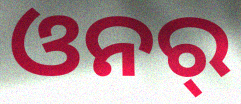
ଓନର୍